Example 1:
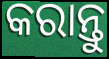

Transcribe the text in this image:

କରାନ୍ତୁ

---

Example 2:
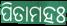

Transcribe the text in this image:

ପିତାମହଃ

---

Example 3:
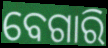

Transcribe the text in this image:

ବେଗାରି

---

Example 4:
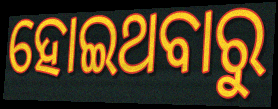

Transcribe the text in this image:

ହୋଇଥବାରୁ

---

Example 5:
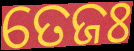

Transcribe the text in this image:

ତେଜଃ